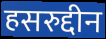
हसरुद्दीन